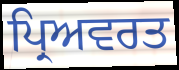
ਪ੍ਰਿਅਵਰਤ